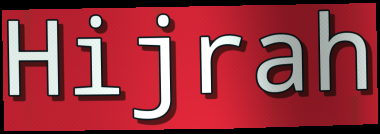
Hijrah